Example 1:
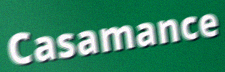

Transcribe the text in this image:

Casamance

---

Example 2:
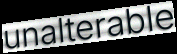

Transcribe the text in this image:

unalterable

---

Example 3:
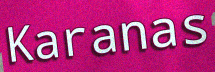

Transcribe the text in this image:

Karanas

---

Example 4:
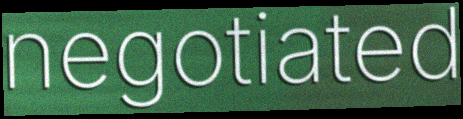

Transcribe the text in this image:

negotiated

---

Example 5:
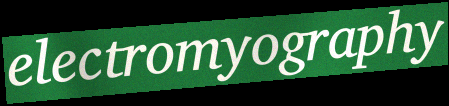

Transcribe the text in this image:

electromyography